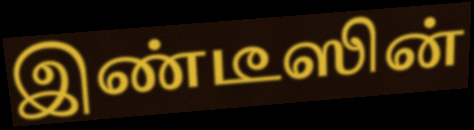
இண்டீஸின்